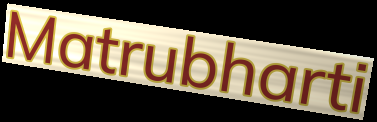
Matrubharti